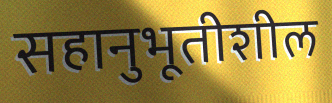
सहानुभूतीशील